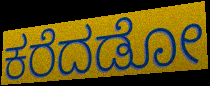
ಕರೆದಡೋ